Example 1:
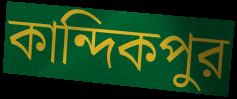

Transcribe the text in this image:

কান্দিকপুর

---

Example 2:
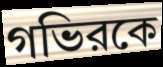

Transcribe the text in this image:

গভিরকে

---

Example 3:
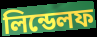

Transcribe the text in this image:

লিন্ডেলফ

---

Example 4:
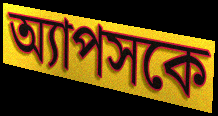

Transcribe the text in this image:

অ্যাপসকে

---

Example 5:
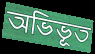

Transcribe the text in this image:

অভিভূত